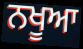
ਨਖੂਆ